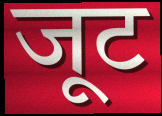
जूट